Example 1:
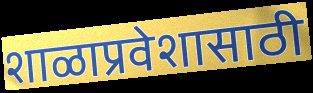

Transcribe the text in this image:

शाळाप्रवेशासाठी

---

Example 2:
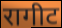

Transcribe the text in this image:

रागीट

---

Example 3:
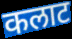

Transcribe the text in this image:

कलाट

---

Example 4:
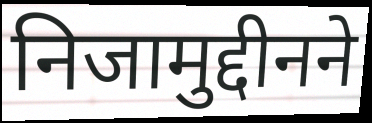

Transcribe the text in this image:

निजामुद्दीनने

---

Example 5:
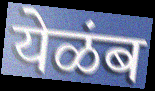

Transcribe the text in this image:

येळंब